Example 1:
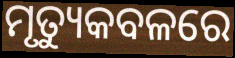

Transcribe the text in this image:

ମୃତ୍ୟୁକବଳରେ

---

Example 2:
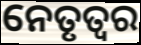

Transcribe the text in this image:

ନେତୃତ୍ବର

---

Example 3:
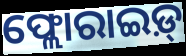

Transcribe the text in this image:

ଫ୍ଲୋରାଇଡ଼୍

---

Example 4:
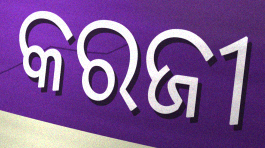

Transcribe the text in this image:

କରଜୀ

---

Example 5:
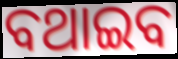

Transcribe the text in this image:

ବଥାଇବ